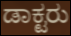
ಡಾಕ್ಟರು